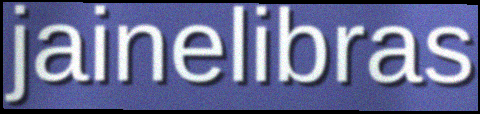
jainelibras